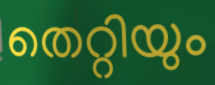
തെറ്റിയും